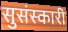
सुसंस्कारी